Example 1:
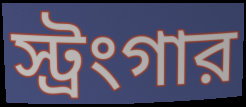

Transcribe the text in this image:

স্ট্রংগার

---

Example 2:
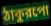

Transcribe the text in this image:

ঠাকুরপো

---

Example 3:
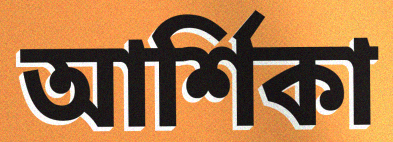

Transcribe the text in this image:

আর্শিকা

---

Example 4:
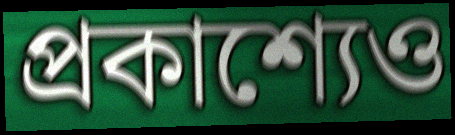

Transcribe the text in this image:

প্রকাশ্যেও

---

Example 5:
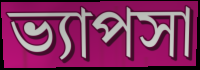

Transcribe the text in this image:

ভ্যাপসা